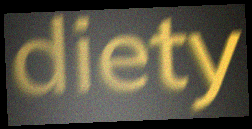
diety